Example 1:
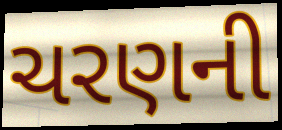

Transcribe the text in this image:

ચરણની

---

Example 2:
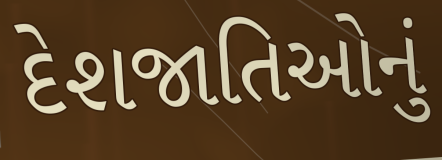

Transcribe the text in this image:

દેશજાતિઓનું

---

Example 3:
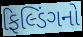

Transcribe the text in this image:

ફિલ્ડિંગનો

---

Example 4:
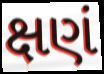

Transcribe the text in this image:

ક્ષણં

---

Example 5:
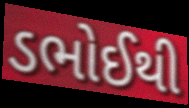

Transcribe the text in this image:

ડભોઈથી